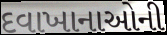
દવાખાનાઓની